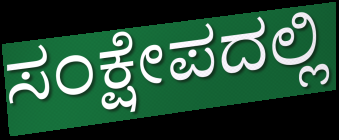
ಸಂಕ್ಷೇಪದಲ್ಲಿ